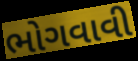
ભોગવાવી